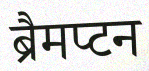
ब्रैमप्टन